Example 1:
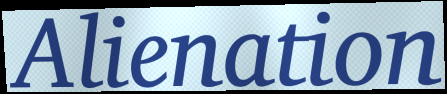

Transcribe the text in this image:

Alienation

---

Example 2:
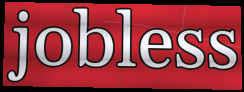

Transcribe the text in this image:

jobless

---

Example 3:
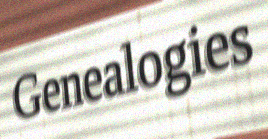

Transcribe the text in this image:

Genealogies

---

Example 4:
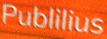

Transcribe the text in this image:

Publilius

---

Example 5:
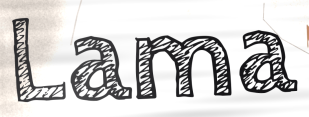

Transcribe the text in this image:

Lama